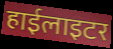
हाईलाइटर